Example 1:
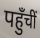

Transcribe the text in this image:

पहुँचीं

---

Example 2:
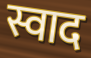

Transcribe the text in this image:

स्‍वाद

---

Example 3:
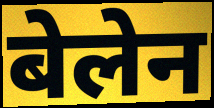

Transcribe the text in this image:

बेलेन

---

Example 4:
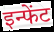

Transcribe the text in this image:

इन्फेंट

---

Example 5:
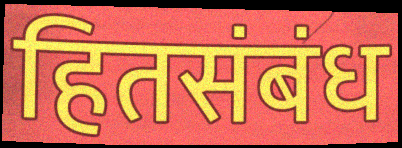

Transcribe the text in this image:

हितसंबंध